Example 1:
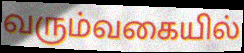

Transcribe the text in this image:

வரும்வகையில்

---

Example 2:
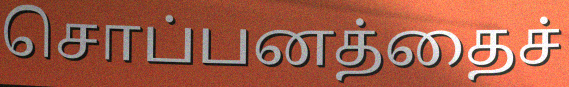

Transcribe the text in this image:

சொப்பனத்தைச்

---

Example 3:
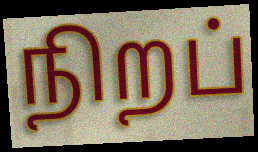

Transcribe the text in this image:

நிறப்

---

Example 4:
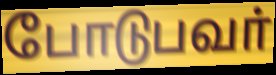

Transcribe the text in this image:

போடுபவர்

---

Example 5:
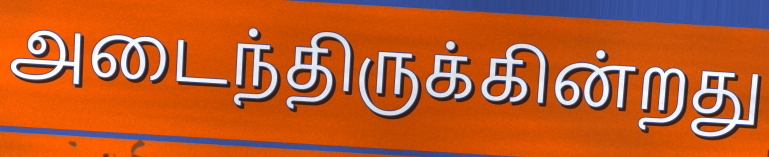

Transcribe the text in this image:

அடைந்திருக்கின்றது